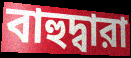
বাহুদ্বারা